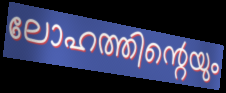
ലോഹത്തിന്റെയും